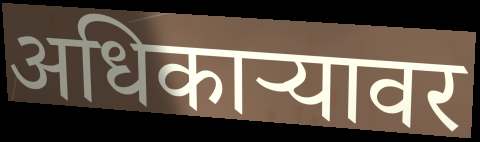
अधिकार्‍यावर